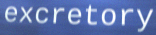
excretory